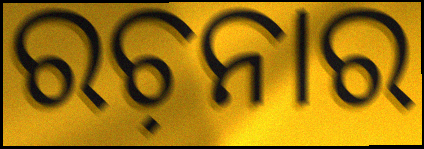
ରଚ଼ନାର